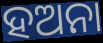
ହଅନା